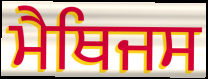
ਮੈਥਿਜਸ